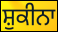
ਸ਼ੁਕੀਨਾ